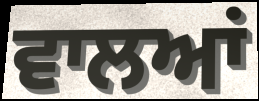
ਵਾਲਆਂ